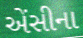
એંસીના